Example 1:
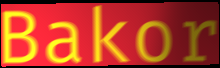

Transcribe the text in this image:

Bakor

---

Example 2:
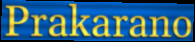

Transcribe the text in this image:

Prakarano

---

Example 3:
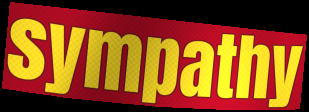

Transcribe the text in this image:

sympathy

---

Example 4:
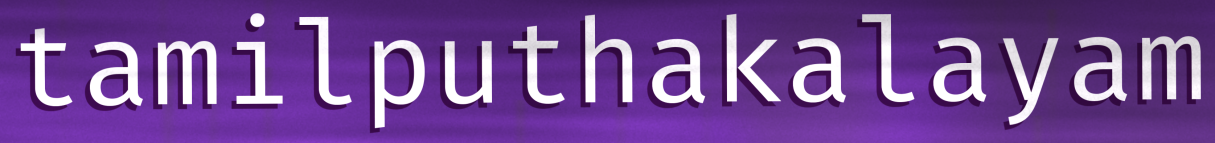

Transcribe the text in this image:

tamilputhakalayam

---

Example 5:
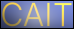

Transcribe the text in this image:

CAIT